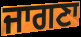
ਜਾਗਣਾ